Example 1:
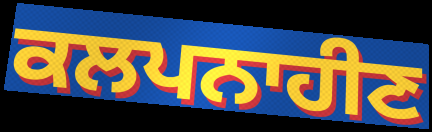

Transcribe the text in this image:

ਕਲਪਨਾਹੀਣ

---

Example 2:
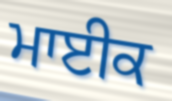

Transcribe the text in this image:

ਮਾਈਕ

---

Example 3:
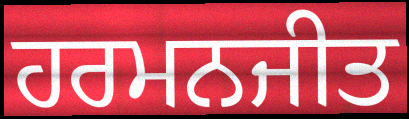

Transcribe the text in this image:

ਹਰਮਨਜੀਤ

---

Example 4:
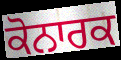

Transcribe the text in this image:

ਕੋਨਾਰਕ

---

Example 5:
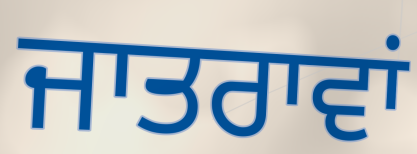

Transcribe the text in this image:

ਜਾਤਰਾਵਾਂ